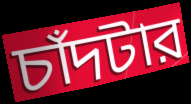
চাঁদটার